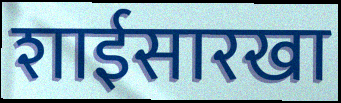
शाईसारखा